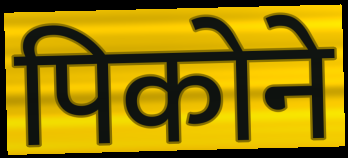
पिकोने